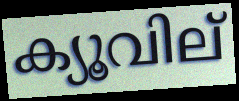
ക്യൂവില്